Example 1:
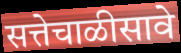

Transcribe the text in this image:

सत्तेचाळीसावे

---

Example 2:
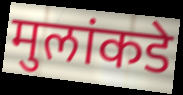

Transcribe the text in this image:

मुलांकडे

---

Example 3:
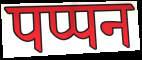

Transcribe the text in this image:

पप्पन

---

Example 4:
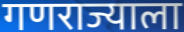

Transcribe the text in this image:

गणराज्याला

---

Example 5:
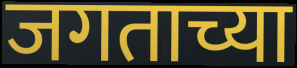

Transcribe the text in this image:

जगताच्या